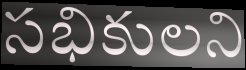
సభికులని